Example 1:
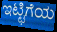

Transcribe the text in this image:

ಇಟ್ಟಿಗೆಯ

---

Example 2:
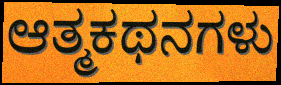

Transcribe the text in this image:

ಆತ್ಮಕಥನಗಳು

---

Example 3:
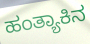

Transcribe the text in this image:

ಹಂತ್ಯಾಕಿನ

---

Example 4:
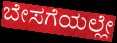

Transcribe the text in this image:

ಬೇಸಗೆಯಲ್ಲೇ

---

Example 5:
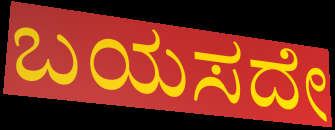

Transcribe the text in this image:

ಬಯಸದೇ